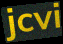
jcvi